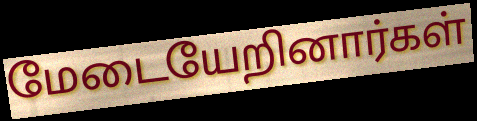
மேடையேறினார்கள்